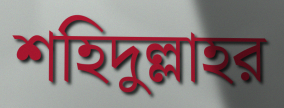
শহিদুল্লাহর